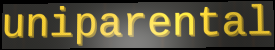
uniparental